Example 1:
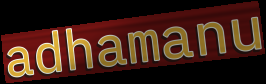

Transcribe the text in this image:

adhamanu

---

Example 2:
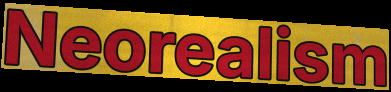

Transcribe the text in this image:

Neorealism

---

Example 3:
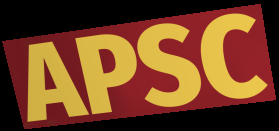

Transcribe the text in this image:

APSC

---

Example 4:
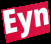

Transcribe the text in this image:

Eyn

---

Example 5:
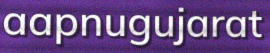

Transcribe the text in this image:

aapnugujarat